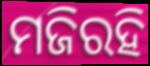
ମଜିରହି